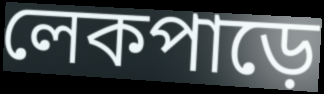
লেকপাড়ে